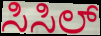
ಸಿಸಿಲ್